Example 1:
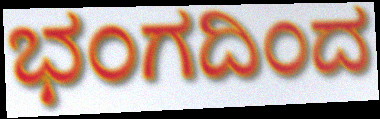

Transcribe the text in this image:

ಭಂಗದಿಂದ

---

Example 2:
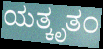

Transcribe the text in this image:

ಯತ್ಕೃತಂ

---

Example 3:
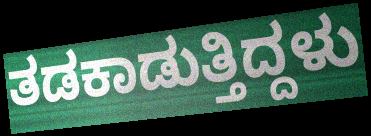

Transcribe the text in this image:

ತಡಕಾಡುತ್ತಿದ್ದಳು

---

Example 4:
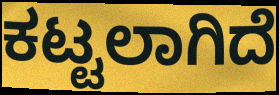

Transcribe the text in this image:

ಕಟ್ಟಲಾಗಿದೆ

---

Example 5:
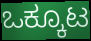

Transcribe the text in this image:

ಒಕ್ಕೂಟ